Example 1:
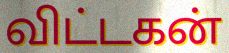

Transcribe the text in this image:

விட்டகன்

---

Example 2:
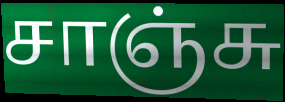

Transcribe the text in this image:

சாஞ்சு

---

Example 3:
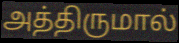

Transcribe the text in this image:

அத்திருமால்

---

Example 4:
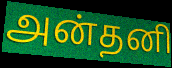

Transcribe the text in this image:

அன்தனி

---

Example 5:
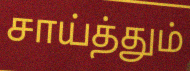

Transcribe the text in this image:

சாய்த்தும்